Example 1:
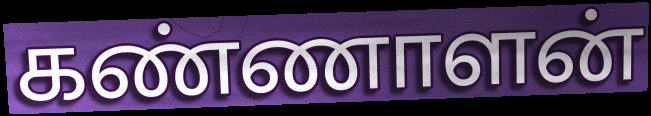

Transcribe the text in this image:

கண்ணாளன்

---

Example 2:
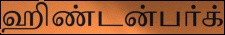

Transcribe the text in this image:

ஹிண்டன்பர்க்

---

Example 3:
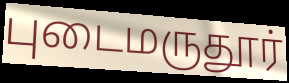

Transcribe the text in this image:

புடைமருதூர்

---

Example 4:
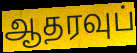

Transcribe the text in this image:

ஆதரவுப்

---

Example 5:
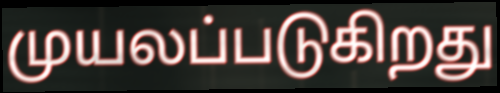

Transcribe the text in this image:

முயலப்படுகிறது